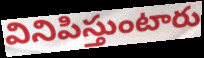
వినిపిస్తుంటారు